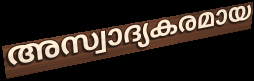
അസ്വാദ്യകരമായ